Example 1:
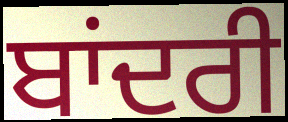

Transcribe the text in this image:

ਬਾਂਦਰੀ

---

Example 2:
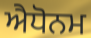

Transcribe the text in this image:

ਐਧੋਨਮ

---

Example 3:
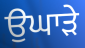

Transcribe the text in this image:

ਉਘਾੜੇ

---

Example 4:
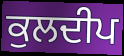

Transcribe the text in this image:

ਕੁਲਦੀਪ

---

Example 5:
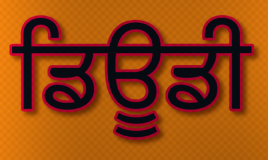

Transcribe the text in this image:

ਡਿਊਡੀ